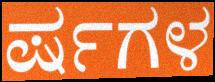
ರ್ಷಗಳ